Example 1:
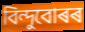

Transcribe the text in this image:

বিন্দুবোৰৰ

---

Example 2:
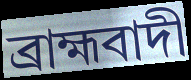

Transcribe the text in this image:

ব্ৰাহ্মবাদী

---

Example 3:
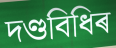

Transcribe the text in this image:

দণ্ডবিধিৰ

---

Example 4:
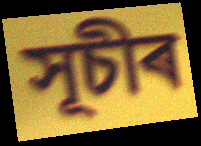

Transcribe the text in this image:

সূচীৰ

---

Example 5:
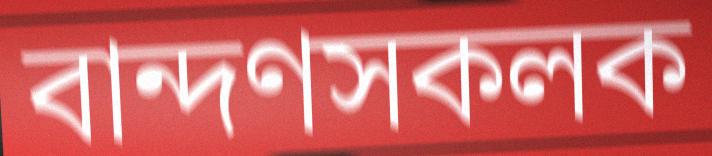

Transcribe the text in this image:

বান্দণসকলক